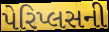
પેરિપ્લસની